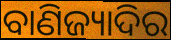
ବାଣିଜ୍ୟାଦିର